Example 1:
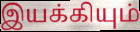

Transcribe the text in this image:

இயக்கியும்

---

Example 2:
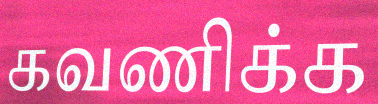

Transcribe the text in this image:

கவணிக்க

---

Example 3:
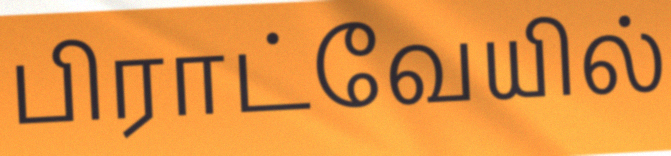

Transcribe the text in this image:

பிராட்வேயில்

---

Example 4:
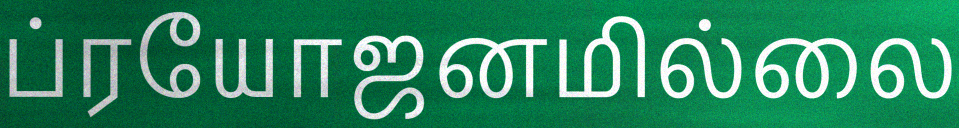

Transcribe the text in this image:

ப்ரயோஜனமில்லை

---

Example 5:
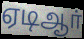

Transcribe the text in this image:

ஏடிஆர்